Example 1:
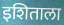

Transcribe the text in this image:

इशिताला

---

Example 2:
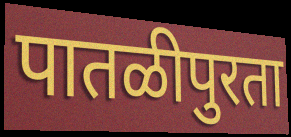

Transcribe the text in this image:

पातळीपुरता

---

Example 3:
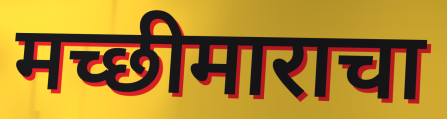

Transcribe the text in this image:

मच्छीमाराचा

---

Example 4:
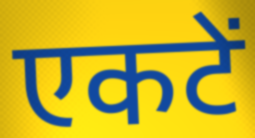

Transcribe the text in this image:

एकटें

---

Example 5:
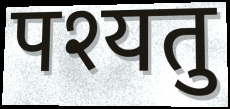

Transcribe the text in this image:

पश्यतु